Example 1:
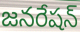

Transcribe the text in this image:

జనరేషన్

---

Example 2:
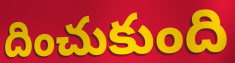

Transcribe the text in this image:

దించుకుంది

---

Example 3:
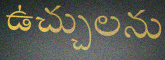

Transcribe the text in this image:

ఉచ్చులను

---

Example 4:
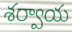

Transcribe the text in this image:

శర్వాయ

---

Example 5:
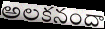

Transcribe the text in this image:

అలకనందా